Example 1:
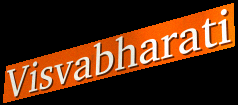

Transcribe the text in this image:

Visvabharati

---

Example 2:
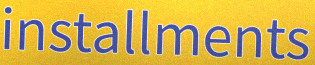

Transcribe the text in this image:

installments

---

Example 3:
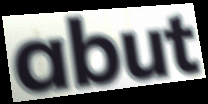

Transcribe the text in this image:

abut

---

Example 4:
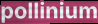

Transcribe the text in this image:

pollinium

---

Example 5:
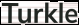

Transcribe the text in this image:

Turkle